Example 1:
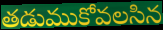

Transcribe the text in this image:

తడుముకోవలసిన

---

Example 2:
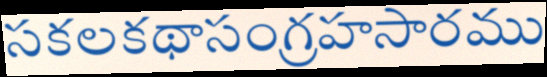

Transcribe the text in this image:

సకలకథాసంగ్రహసారము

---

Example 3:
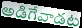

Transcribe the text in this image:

అడిగేవాడట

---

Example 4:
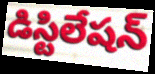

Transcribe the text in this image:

డిస్టిలేషన్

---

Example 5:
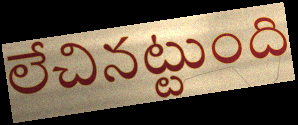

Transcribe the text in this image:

లేచినట్టుంది